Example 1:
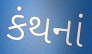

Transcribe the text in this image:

કંથનાં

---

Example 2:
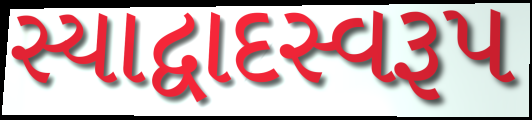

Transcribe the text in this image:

સ્યાદ્વાદસ્વરૂપ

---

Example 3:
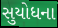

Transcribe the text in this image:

સુયોધના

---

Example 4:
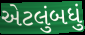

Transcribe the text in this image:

એટલુંબધું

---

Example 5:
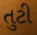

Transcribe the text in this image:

તુટી